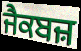
ਜੈਕਬਜ਼